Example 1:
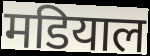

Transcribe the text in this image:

मडियाल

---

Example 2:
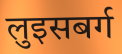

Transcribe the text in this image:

लुइसबर्ग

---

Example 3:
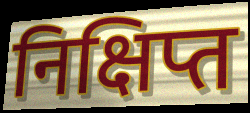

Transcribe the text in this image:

निक्षिप्त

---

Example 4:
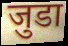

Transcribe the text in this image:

जुडा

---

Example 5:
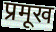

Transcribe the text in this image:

प्रमूख